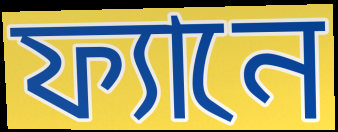
ফ্যানে